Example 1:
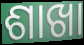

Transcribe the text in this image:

ଶାଖା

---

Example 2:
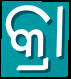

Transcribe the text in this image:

କ୍ରା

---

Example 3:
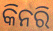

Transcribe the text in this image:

କିନରି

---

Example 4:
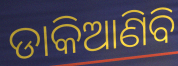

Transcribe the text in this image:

ଡାକିଆଣିବି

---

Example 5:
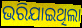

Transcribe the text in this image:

ଭରିଯାଇଥିଲା